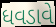
ધવડાવે